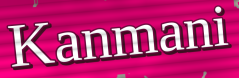
Kanmani